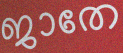
ജാതേ